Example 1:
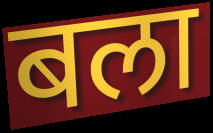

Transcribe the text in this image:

बला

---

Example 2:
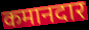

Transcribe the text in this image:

कमानदार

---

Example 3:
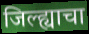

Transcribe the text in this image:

जिल्ह्याचा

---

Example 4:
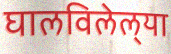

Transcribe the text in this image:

घालविलेल्या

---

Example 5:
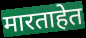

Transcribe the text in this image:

मारताहेत